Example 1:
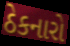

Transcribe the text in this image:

ઠેકનારો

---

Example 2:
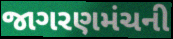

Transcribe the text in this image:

જાગરણમંચની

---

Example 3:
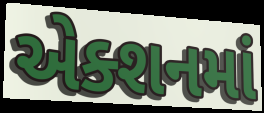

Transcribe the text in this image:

એક્શનમાં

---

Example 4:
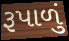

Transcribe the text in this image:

રૂપાળું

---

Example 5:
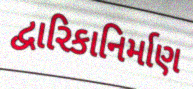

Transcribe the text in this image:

દ્વારિકાનિર્માણ